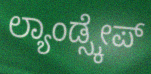
ಲ್ಯಾಂಡ್ಸ್ಕೇಪ್